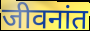
जीवनांत